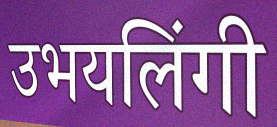
उभयलिंगी